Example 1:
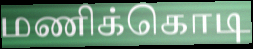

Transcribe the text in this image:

மணிக்கொடி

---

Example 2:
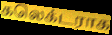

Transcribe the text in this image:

கலெக்டராக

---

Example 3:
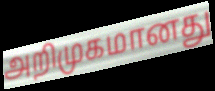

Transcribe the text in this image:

அறிமுகமானது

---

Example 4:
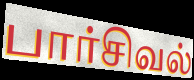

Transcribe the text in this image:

பார்சிவல்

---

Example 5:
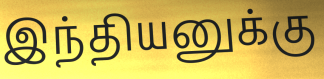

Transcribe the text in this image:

இந்தியனுக்கு